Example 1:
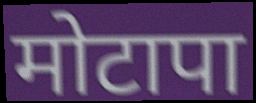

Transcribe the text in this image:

मोटापा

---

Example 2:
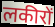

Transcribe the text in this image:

लकीरों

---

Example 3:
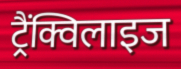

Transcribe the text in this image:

ट्रैंक्विलाइज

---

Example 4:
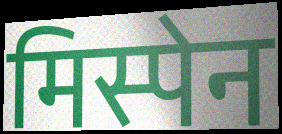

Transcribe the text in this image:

मिस्पेन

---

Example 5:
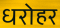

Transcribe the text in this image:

धरोहर